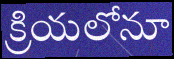
క్రియలోనూ